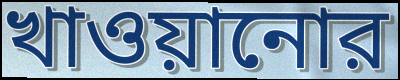
খাওয়ানোর